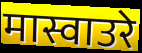
मास्वाउरे